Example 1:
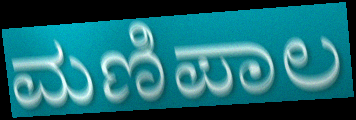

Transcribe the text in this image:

ಮಣಿಪಾಲ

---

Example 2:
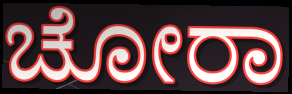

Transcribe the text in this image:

ಚೋರಾ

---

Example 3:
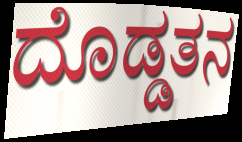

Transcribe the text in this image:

ದೊಡ್ಡತನ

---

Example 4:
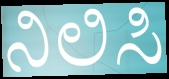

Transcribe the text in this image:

ನಿಲಿಸಿ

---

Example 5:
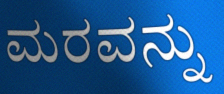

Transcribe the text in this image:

ಮರವನ್ನು